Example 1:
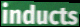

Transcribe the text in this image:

inducts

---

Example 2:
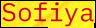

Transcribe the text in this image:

Sofiya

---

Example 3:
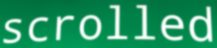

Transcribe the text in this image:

scrolled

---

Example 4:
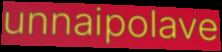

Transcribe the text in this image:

unnaipolave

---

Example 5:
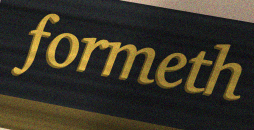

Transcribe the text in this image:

formeth